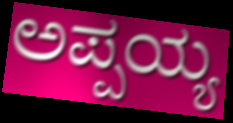
ಅಪ್ಪಯ್ಯ